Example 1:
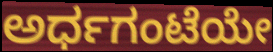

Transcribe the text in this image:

ಅರ್ಧಗಂಟೆಯೇ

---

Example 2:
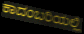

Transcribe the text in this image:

ಕಾದಂಬರಿಯಲ್ಲಿ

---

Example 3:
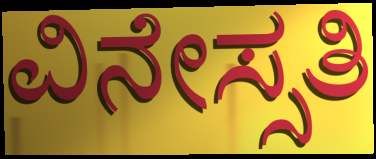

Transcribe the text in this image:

ವಿನೇಸ್ಸತಿ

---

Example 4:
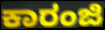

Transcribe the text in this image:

ಕಾರಂಜಿ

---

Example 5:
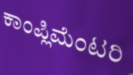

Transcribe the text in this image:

ಕಾಂಪ್ಲಿಮೆಂಟರಿ